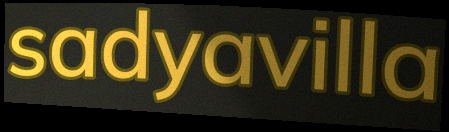
sadyavilla